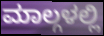
ಮಾಲ್ಗಳಲ್ಲಿ